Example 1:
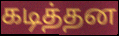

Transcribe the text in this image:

கடித்தன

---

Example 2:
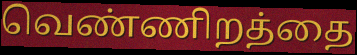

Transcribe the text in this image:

வெண்ணிறத்தை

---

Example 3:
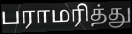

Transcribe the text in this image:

பராமரித்து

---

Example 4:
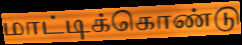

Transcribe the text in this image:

மாட்டிக்கொண்டு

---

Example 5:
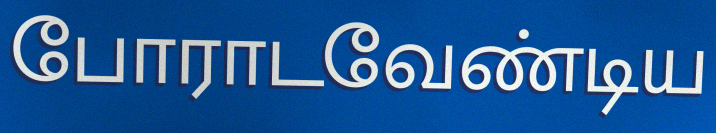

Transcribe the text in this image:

போராடவேண்டிய